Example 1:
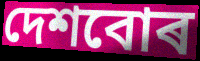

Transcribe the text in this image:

দেশবোৰ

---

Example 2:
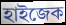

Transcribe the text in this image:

হাইজেক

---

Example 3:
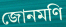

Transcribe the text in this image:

জোনমণি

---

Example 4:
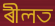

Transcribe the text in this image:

ৰীলত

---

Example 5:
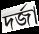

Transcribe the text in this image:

দৰ্জা